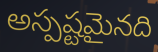
అస్పష్టమైనది